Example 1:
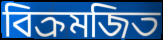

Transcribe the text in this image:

বিক্রমজিত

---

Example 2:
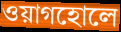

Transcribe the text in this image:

ওয়াগহোলে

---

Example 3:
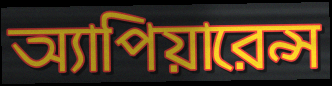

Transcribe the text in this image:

অ্যাপিয়ারেন্স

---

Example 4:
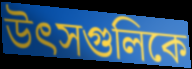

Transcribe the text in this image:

উৎসগুলিকে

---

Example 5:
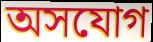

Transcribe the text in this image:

অসযোগ